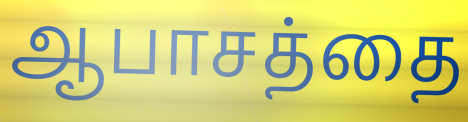
ஆபாசத்தை